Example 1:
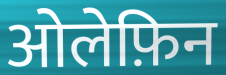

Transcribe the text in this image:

ओलेफ़िन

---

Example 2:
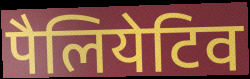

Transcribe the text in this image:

पैलियेटिव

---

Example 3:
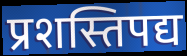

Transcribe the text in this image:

प्रशस्तिपद्य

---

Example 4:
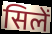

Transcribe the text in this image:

सिलें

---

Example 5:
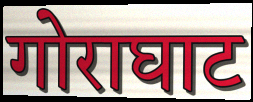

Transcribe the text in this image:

गोराघाट